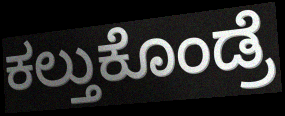
ಕಲ್ತುಕೊಂಡ್ರೆ